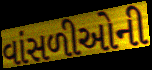
વાંસળીઓની